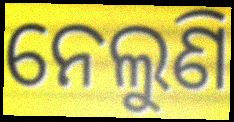
ନେଲୁଣି